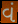
વં